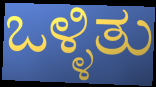
ಒಳ್ಳಿತು